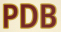
PDB